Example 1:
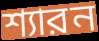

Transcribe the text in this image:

শ্যারন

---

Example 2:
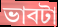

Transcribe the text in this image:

ভাবটা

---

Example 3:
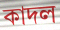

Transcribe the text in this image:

কাদল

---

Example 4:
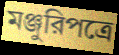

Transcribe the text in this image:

মঞ্জুরিপত্রে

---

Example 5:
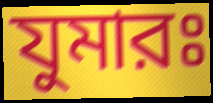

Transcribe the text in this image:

যুমারঃ